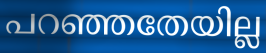
പറഞ്ഞതേയില്ല